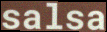
salsa